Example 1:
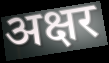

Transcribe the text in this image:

अक्षर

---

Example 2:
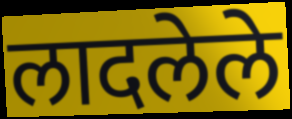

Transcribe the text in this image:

लादलेले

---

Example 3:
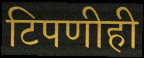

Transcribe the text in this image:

टिपणीही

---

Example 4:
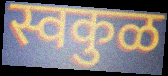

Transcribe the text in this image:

स्वकुळ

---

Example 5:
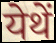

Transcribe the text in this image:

येथें